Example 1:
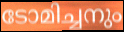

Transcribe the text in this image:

ടോമിച്ചനും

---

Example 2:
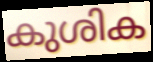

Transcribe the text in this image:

കുശിക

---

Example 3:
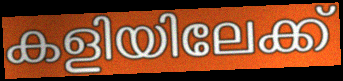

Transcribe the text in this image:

കളിയിലേക്ക്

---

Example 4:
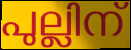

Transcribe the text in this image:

പുല്ലിന്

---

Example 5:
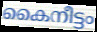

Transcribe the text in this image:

കൈനീട്ടം